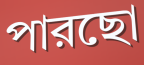
পারছো